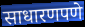
साधारणपणे